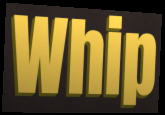
Whip